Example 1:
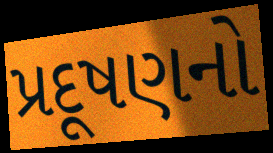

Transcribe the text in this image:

પ્રદૂષણનો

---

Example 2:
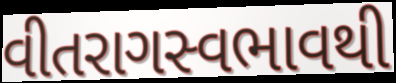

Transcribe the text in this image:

વીતરાગસ્વભાવથી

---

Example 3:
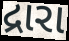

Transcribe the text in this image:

દ્રારા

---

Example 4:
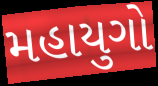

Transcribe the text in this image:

મહાયુગો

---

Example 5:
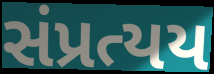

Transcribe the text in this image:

સંપ્રત્યય